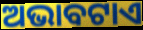
ଅଭାବଟାଏ